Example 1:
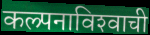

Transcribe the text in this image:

कल्पनाविश्वाची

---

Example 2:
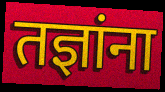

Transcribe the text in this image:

तज्ञांना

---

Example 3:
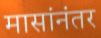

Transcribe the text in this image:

मासांनंतर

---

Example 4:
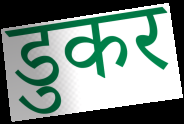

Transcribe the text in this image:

डुकर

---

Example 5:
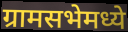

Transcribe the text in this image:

ग्रामसभेमध्ये